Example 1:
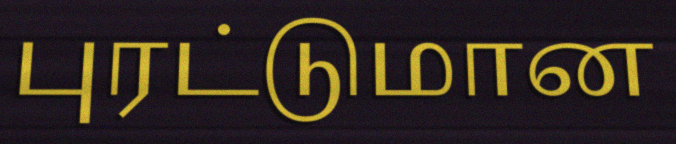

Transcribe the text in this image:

புரட்டுமான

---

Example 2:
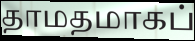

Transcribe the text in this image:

தாமதமாகப்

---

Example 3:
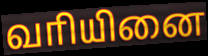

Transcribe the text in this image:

வரியினை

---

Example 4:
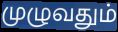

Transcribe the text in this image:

முழுவதும்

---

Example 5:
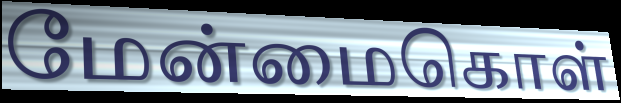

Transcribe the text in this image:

மேன்மைகொள்